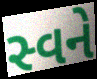
સ્વને